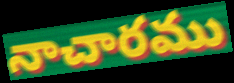
నాచారము